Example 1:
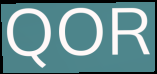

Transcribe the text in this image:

QOR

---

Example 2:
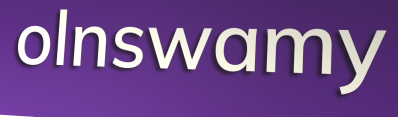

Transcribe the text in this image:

olnswamy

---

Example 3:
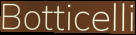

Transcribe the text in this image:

Botticelli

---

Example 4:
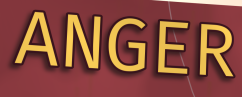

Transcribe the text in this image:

ANGER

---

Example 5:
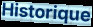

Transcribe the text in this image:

Historique